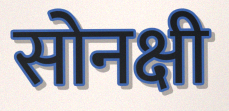
सोनक्षी